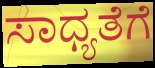
ಸಾಧ್ಯತೆಗೆ